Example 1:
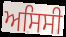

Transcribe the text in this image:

ਅਸਿਸੀ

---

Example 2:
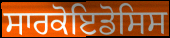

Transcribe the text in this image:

ਸਾਰਕੋਇਡੋਸਿਸ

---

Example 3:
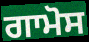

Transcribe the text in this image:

ਗਾਮੋਸ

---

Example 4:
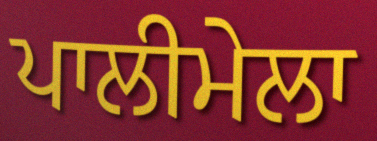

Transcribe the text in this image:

ਪਾਲੀਮੇਲਾ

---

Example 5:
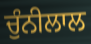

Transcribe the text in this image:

ਚੁੰਨੀਲਾਲ